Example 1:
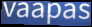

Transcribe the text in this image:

vaapas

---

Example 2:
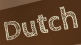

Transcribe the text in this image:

Dutch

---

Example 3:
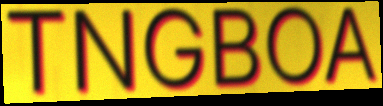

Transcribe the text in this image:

TNGBOA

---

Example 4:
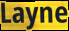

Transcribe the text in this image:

Layne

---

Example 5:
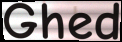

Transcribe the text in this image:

Ghed